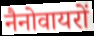
नैनोवायरों